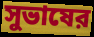
সুভাষের